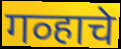
गव्हाचे